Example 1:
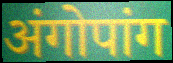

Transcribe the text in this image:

अंगोपांग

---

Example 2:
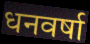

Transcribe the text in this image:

धनवर्षा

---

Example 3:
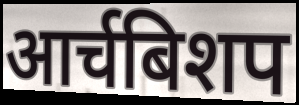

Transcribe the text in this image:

आर्चबिशप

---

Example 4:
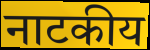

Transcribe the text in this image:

नाटकीय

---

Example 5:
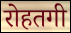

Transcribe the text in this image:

रोहतगी